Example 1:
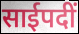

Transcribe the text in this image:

साईपदीं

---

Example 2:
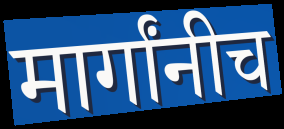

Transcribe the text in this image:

मार्गांनीच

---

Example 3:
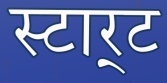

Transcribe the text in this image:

स्टार्ट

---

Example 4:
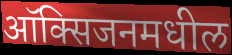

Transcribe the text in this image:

ऑक्सिजनमधील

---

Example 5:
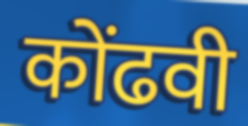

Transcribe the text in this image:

कोंढवी